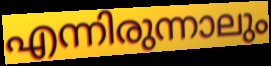
എന്നിരുന്നാലും